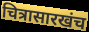
चित्रासारखंच